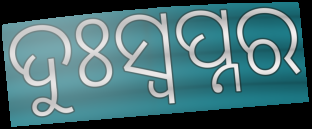
ଦୁଃସ୍ବପ୍ନର